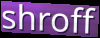
shroff